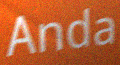
Anda